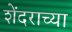
शेंदराच्या